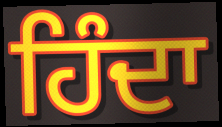
ਹਿੰਦਾ